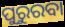
ପୁରୁରବା